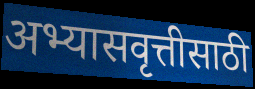
अभ्यासवृत्तीसाठी